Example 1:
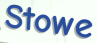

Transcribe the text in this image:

Stowe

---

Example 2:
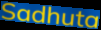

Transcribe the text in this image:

Sadhuta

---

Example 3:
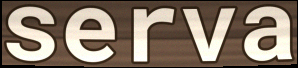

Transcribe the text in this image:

serva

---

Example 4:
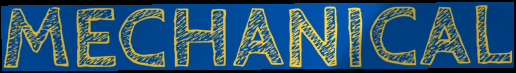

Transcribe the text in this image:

MECHANICAL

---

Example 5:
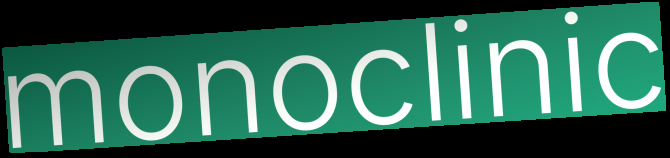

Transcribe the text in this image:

monoclinic